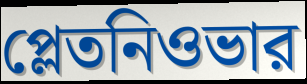
প্লেতনিওভার